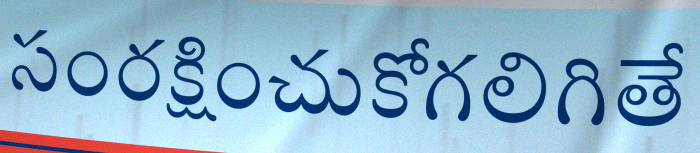
సంరక్షించుకోగలిగితే